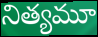
నిత్యమూ